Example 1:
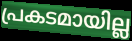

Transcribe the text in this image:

പ്രകടമായില്ല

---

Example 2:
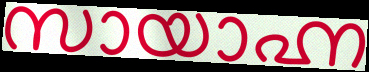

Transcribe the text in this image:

സായാഹ്ന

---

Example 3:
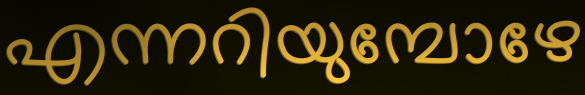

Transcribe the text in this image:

എന്നറിയുമ്പോഴേ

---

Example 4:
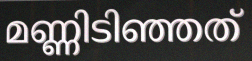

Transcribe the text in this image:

മണ്ണിടിഞ്ഞത്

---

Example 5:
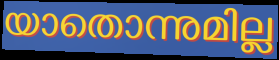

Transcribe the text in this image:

യാതൊന്നുമില്ല